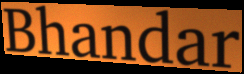
Bhandar